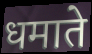
धमाते